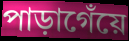
পাড়াগেঁয়ে